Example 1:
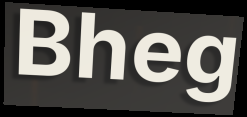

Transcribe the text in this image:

Bheg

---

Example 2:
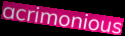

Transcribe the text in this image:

acrimonious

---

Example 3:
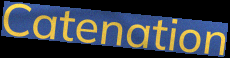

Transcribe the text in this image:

Catenation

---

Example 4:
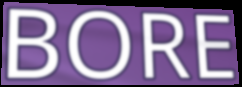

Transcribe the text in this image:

BORE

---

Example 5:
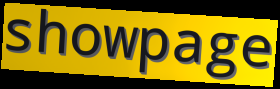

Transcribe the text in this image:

showpage